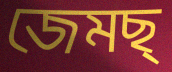
জেমছ্